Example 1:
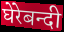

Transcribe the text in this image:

घेरेबन्दी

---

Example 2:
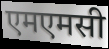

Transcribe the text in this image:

एमएमसी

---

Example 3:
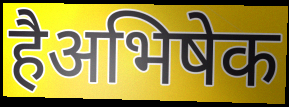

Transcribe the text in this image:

हैअभिषेक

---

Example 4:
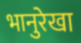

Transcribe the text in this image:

भानुरेखा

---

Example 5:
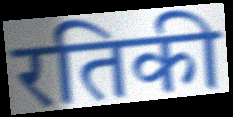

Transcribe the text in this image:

रतिकी